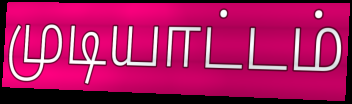
முடியாட்டம்